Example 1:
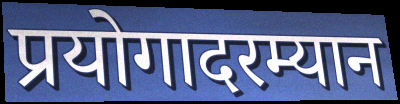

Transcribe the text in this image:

प्रयोगादरम्यान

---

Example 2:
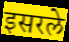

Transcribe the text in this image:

इसरले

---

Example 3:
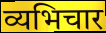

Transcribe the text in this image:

व्यभिचार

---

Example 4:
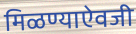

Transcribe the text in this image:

मिळण्याऐवजी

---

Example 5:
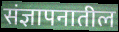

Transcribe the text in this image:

संज्ञापनातील